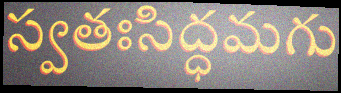
స్వతఃసిద్ధమగు